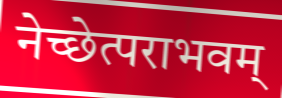
नेच्छेत्पराभवम्